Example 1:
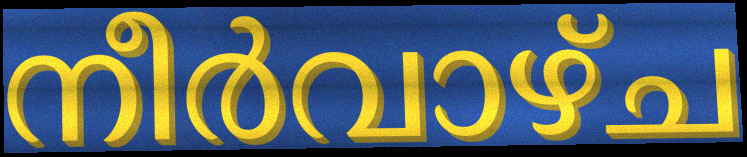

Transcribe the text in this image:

നീർവാഴ്ച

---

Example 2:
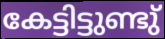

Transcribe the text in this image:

കേട്ടിട്ടുണ്ടു്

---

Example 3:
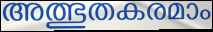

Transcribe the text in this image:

അത്ഭുതകരമാം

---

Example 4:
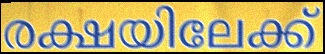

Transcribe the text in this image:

രക്ഷയിലേക്ക്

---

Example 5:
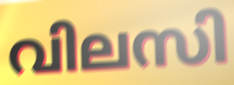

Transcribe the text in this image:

വിലസി